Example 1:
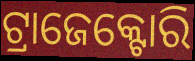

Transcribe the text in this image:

ଟ୍ରାଜେକ୍ଟୋରି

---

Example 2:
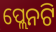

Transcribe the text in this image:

ପ୍ଲେନଟି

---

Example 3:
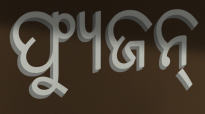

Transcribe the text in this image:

ଫ୍ୟୁଜନ୍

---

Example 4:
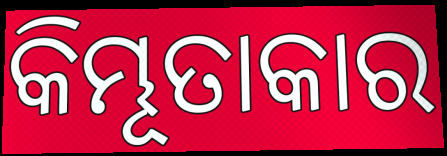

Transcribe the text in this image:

କିମ୍ଭୂତାକାର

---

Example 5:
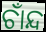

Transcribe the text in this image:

ଚାଁନ୍ଦ